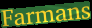
Farmans